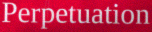
Perpetuation